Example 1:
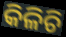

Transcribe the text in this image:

କିଳିଚି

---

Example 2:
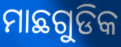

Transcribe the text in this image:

ମାଛଗୁଡିକ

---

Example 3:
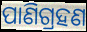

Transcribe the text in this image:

ପାଣିଗ୍ରହଣ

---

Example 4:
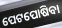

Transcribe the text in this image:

ପେଟପୋଷିବା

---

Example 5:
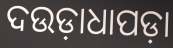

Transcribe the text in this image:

ଦଉଡ଼ାଧାପଡ଼ା